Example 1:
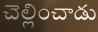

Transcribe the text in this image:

చెల్లించాడు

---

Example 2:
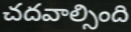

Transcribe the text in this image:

చదవాల్సింది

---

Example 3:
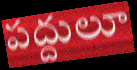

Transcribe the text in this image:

పద్దులూ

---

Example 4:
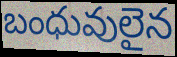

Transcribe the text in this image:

బంధువులైన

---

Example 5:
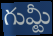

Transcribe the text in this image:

గుమ్టీ